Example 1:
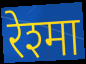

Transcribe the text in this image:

रेश्मा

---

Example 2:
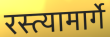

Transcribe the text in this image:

रस्त्यामार्गे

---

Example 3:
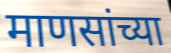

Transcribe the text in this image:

माणसांच्या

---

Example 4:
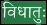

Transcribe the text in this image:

विधातुः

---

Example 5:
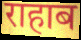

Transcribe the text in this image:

राहाब